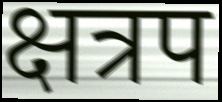
क्षत्रप